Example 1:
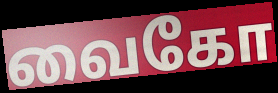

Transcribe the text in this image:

வைகோ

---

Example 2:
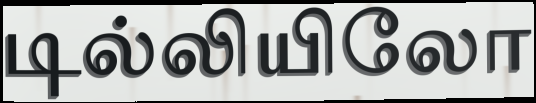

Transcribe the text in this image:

டில்லியிலோ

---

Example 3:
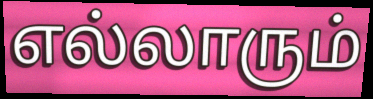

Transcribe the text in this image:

எல்லாரும்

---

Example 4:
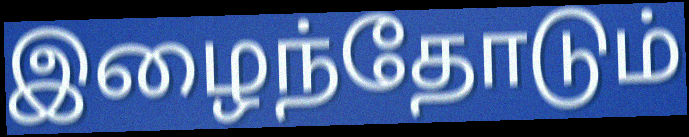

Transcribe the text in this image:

இழைந்தோடும்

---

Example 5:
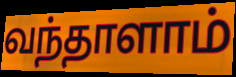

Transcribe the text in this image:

வந்தாளாம்